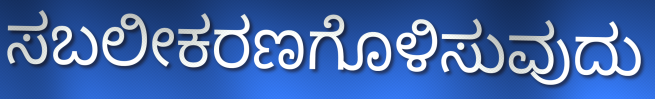
ಸಬಲೀಕರಣಗೊಳಿಸುವುದು